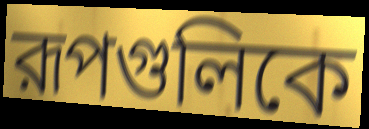
রূপগুলিকে